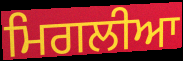
ਮਿਗਲੀਆ